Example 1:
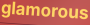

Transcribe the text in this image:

glamorous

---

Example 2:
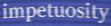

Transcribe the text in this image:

impetuosity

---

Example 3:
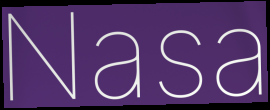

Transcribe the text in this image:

Nasa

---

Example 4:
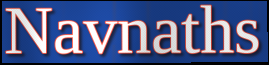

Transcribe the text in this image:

Navnaths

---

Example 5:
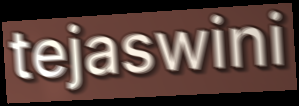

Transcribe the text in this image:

tejaswini